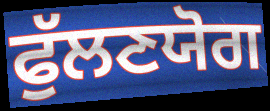
ਫੁੱਲਣਯੋਗ